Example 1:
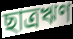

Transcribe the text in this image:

ছাত্রঋণ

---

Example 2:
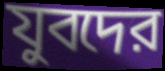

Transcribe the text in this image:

যুবদের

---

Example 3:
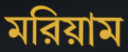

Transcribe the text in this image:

মরিয়াম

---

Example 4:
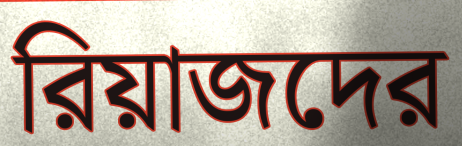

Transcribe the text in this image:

রিয়াজদের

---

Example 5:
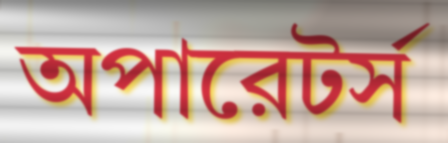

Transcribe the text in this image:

অপারেটর্স